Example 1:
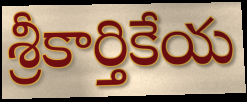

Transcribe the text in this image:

శ్రీకార్తికేయ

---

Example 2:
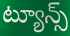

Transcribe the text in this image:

ట్యూన్స్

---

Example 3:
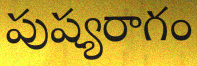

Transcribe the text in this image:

పుష్యరాగం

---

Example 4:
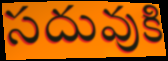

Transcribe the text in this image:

సదువుకి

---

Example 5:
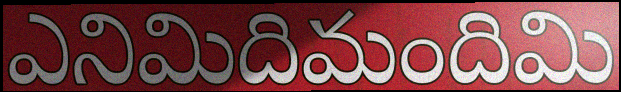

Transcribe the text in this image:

ఎనిమిదిమందిమి